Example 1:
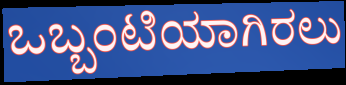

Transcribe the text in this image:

ಒಬ್ಬಂಟಿಯಾಗಿರಲು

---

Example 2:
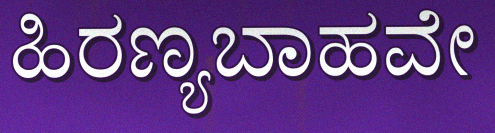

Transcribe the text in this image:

ಹಿರಣ್ಯಬಾಹವೇ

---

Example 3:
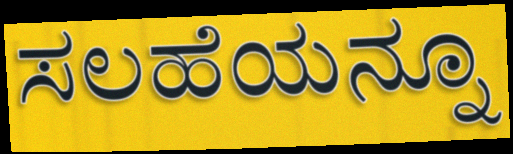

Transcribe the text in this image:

ಸಲಹೆಯನ್ನೂ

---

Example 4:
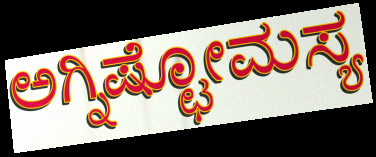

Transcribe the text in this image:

ಅಗ್ನಿಷ್ಟೋಮಸ್ಯ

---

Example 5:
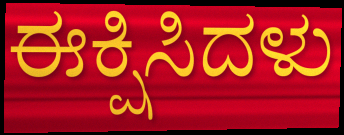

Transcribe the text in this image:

ಈಕ್ಷಿಸಿದಳು